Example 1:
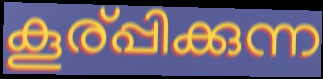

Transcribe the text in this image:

കൂര്പ്പിക്കുന്ന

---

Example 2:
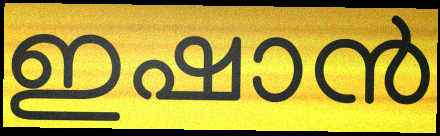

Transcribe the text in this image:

ഇഷാൻ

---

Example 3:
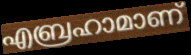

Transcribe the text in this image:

എബ്രഹാമാണ്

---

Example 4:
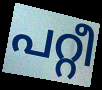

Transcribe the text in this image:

പറ്റീ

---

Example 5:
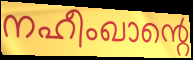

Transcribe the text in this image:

നഹീംഖാന്റെ